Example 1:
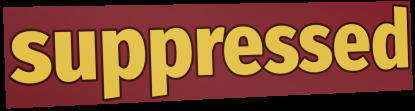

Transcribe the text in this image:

suppressed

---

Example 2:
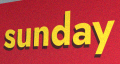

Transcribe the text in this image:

sunday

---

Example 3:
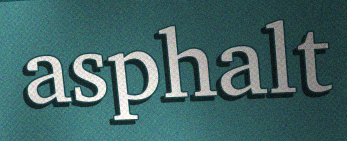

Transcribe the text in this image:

asphalt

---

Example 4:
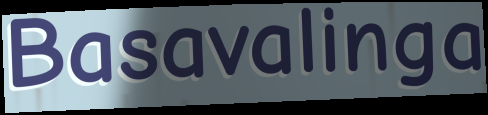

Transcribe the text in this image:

Basavalinga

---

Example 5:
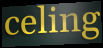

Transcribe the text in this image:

celing